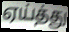
ஏய்த்து